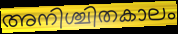
അനിശ്ചിതകാലം